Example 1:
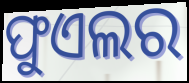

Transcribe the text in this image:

ଫୁଏଲର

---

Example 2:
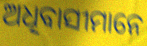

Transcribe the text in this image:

ଅଧିବାସୀମାନେ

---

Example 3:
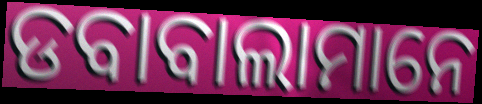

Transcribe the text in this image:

ଡବାବାଲାମାନେ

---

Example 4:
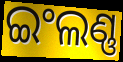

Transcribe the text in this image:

ଇଂଲଣ୍ଣ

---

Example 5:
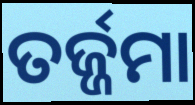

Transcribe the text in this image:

ତର୍ଜ୍ଜମା